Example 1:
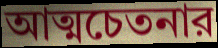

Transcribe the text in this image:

আত্মচেতনার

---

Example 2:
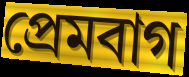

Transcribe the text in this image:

প্রেমবাগ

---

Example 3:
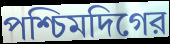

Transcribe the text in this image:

পশ্চিমদিগের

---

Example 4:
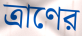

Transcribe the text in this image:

ত্রাণের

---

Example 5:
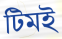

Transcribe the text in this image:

টিমই